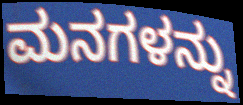
ಮನಗಳನ್ನು